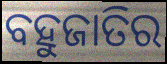
ବହୁଜାତିର